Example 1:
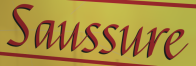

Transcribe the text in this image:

Saussure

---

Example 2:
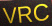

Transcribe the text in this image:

VRC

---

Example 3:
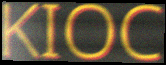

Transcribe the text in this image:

KIOC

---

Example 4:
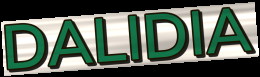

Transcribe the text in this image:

DALIDIA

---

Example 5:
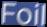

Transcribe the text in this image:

Foil